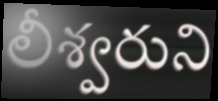
లీశ్వరుని